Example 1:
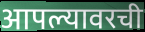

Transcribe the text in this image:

आपल्यावरची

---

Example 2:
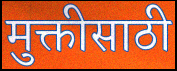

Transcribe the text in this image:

मुक्तीसाठी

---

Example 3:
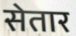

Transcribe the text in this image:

सेतार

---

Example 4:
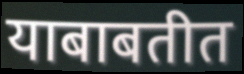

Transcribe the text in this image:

याबाबतीत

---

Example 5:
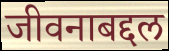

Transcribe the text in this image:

जीवनाबद्दल